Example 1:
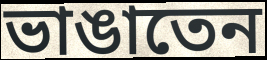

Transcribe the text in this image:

ভাঙাতেন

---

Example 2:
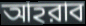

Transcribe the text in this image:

আহরাব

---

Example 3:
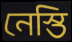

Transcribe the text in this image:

নেস্তি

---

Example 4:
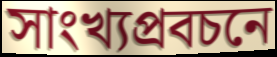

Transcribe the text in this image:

সাংখ্যপ্রবচনে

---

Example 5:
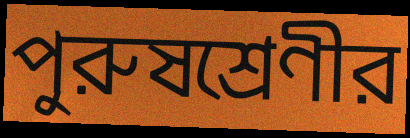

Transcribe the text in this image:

পুরুষশ্রেণীর